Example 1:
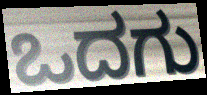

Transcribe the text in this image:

ಒದಗು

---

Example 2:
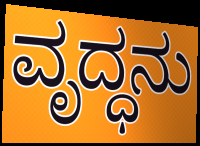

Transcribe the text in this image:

ವೃದ್ಧನು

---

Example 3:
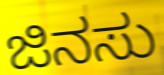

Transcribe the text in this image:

ಜಿನಸು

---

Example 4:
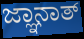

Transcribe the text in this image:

ಜ್ಞಾನಾತ್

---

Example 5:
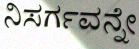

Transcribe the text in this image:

ನಿಸರ್ಗವನ್ನೇ